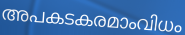
അപകടകരമാംവിധം